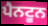
ਪੈਨਟੂਨ